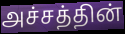
அச்சத்தின்